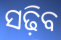
ସଢ଼ିବ